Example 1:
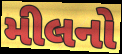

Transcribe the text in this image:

મીલનો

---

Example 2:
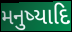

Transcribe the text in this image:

મનુષ્યાદિ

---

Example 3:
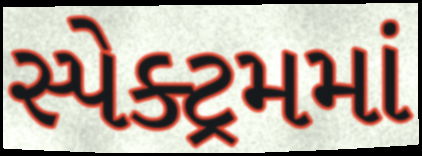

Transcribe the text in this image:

સ્પેક્ટ્રમમાં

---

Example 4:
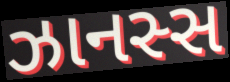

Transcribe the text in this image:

ઝાનસ્સ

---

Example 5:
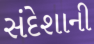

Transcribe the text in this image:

સંદેશાની